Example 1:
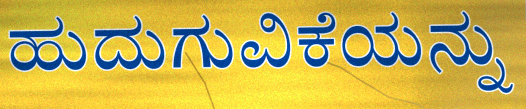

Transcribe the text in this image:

ಹುದುಗುವಿಕೆಯನ್ನು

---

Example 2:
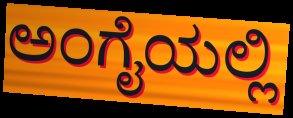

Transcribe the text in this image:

ಅಂಗೈಯಲ್ಲಿ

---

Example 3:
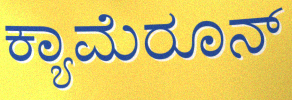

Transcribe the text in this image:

ಕ್ಯಾಮೆರೂನ್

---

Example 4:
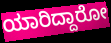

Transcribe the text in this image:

ಯಾರಿದ್ದಾರೋ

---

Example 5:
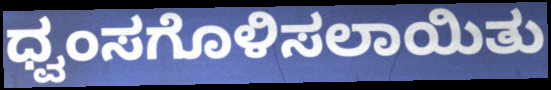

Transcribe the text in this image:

ಧ್ವಂಸಗೊಳಿಸಲಾಯಿತು